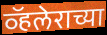
व्हॅलेराच्या